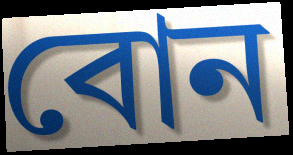
বোন